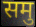
समु